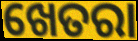
ଖେତରା